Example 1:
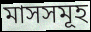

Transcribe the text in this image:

মাসসমূহ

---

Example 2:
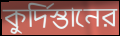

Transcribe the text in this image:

কুর্দিস্তানের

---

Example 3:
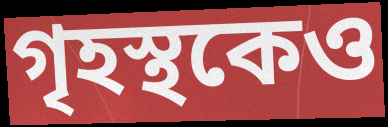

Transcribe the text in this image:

গৃহস্থকেও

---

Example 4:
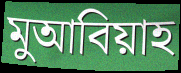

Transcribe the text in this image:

মুআবিয়াহ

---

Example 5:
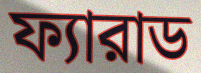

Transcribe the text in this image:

ফ্যারাড